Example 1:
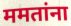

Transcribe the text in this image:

ममतांना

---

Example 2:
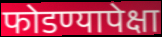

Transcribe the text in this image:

फोडण्यापेक्षा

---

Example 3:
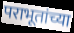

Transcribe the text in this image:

पराभूतांच्या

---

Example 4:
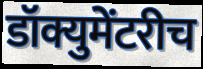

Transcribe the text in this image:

डॉक्युमेंटरीच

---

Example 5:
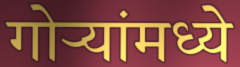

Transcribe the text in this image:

गोऱ्यांमध्ये